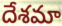
దేశమా